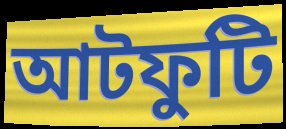
আটফুটি